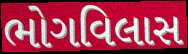
ભોગવિલાસ